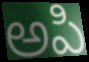
అపి